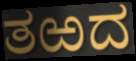
ತಱದ